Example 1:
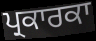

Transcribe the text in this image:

ਪ੍ਰਕਾਰਕਾ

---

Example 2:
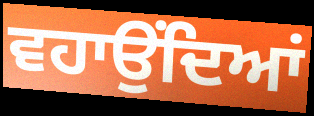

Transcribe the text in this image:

ਵਹਾਉਂਦਿਆਂ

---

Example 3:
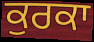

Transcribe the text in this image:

ਕੁਰਕਾ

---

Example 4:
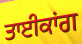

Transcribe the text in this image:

ਤਾਈਕਾਂਗ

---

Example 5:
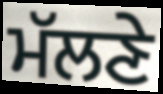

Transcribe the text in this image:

ਮੱਲਣੇ